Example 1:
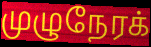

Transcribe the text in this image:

முழுநேரக்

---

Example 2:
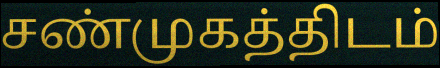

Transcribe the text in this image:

சண்முகத்திடம்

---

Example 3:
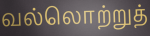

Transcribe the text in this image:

வல்லொற்றுத்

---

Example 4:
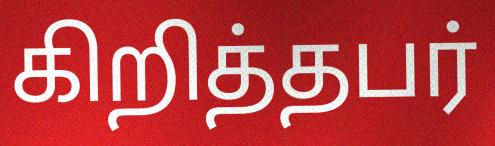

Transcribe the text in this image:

கிறித்தபர்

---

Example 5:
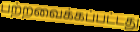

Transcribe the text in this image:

பற்றவைக்கப்பட்டது